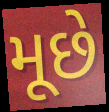
મૂછે